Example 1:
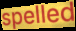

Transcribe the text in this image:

spelled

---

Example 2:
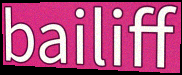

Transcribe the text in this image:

bailiff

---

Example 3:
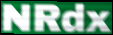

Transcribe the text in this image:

NRdx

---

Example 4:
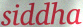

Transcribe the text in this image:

siddha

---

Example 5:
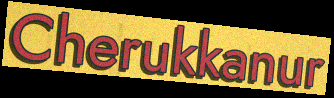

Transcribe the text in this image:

Cherukkanur